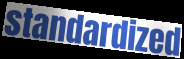
standardized